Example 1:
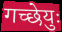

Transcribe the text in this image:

गच्छेयुः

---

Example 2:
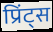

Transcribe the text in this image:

प्रिंट्स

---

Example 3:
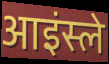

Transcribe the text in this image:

आइंस्ले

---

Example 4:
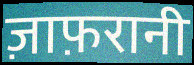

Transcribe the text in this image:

ज़ाफ़रानी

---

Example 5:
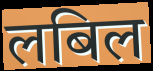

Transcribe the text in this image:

लबिल